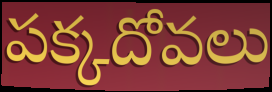
పక్కదోవలు